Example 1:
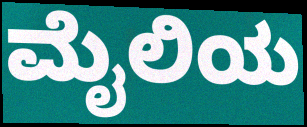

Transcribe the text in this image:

ಮೈಲಿಯ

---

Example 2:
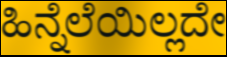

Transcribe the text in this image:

ಹಿನ್ನೆಲೆಯಿಲ್ಲದೇ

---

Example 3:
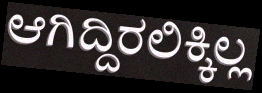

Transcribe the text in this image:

ಆಗಿದ್ದಿರಲಿಕ್ಕಿಲ್ಲ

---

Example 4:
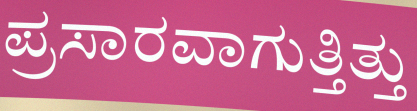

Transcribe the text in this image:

ಪ್ರಸಾರವಾಗುತ್ತಿತ್ತು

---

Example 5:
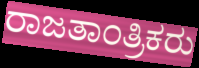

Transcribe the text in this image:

ರಾಜತಾಂತ್ರಿಕರು